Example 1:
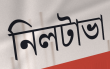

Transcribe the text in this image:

নিলটাভা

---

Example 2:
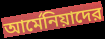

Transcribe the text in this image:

আর্মেনিয়াদের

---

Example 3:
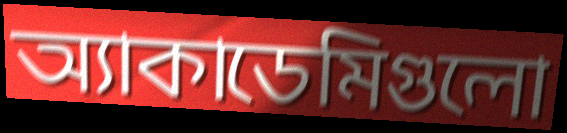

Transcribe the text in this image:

অ্যাকাডেমিগুলো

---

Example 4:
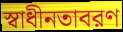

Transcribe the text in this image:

স্বাধীনতাবরণ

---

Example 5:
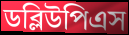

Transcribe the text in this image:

ডব্লিউপিএস